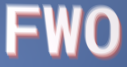
FWO